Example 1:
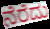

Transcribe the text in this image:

ನೆರೆದು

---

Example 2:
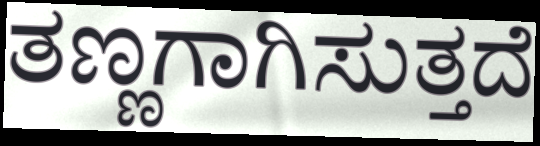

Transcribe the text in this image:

ತಣ್ಣಗಾಗಿಸುತ್ತದೆ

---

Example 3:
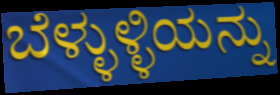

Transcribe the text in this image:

ಬೆಳ್ಳುಳ್ಳಿಯನ್ನು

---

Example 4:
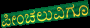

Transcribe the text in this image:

ಪೀಂಚಲುವಿಗೂ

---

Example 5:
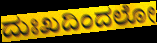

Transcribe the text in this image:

ದುಃಖದಿಂದಲೋ